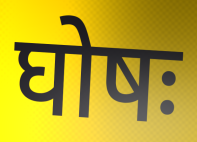
घोषः